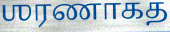
ஶரணாகத